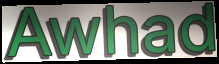
Awhad